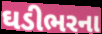
ઘડીભરના